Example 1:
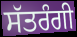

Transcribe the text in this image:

ਸੱਤਰੰਗੀ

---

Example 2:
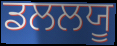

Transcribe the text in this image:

ਡਲਲਯੂ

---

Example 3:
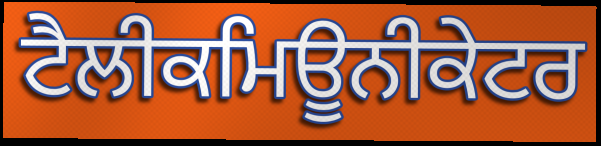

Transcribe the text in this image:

ਟੈਲੀਕਮਿਊਨੀਕੇਟਰ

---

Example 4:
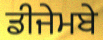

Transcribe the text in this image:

ਡੀਜੇਮਬੇ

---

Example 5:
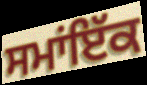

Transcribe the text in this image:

ਸਮਾਂਇੱਕ